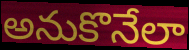
అనుకొనేలా